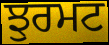
ਝੁਰਮਟ